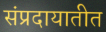
संप्रदायातीत